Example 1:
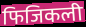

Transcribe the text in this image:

फिजिकली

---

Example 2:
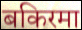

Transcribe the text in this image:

बकिरमा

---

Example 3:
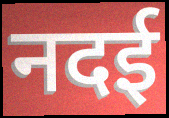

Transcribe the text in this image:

नदई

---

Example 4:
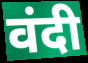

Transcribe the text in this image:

वंदी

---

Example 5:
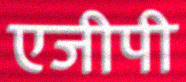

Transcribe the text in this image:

एजीपी